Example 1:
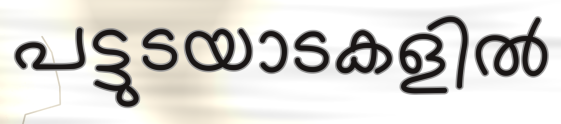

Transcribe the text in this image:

പട്ടുടയാടകളിൽ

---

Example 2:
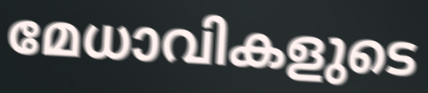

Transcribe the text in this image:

മേധാവികളുടെ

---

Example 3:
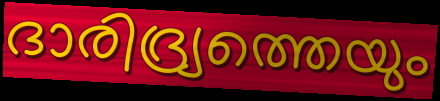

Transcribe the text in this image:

ദാരിദ്ര്യത്തെയും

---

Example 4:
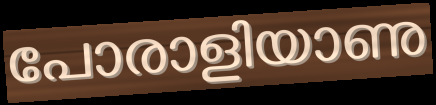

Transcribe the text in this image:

പോരാളിയാണു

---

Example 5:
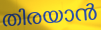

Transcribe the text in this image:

തിരയാൻ